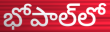
భోపాల్‌లో